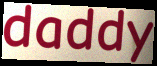
daddy